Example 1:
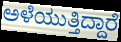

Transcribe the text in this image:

ಅಳೆಯುತ್ತಿದ್ದಾರೆ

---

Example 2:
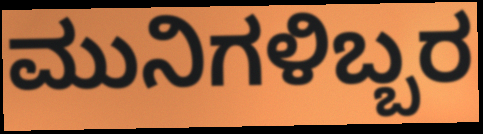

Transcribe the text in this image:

ಮುನಿಗಳಿಬ್ಬರ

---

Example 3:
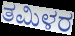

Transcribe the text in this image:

ತಮಿಳರ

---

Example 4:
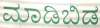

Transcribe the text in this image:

ಮಾಡಿಬಿಡ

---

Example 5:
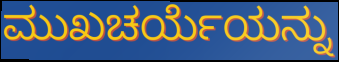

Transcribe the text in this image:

ಮುಖಚರ್ಯೆಯನ್ನು